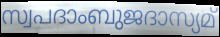
സ്വപദാംബുജദാസ്യമ്